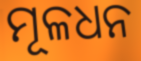
ମୂଳଧନ